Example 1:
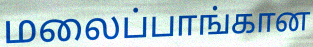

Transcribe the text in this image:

மலைப்பாங்கான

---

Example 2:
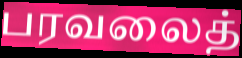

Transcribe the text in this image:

பரவலைத்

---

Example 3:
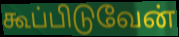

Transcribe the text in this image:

கூப்பிடுவேன்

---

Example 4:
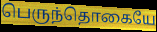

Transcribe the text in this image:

பெருந்தொகையே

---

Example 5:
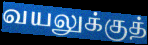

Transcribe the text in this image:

வயலுக்குத்